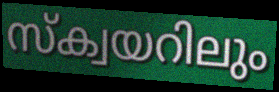
സ്ക്വയറിലും